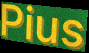
Pius